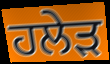
ਹਲੇੜ